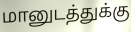
மானுடத்துக்கு